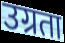
उग्रता